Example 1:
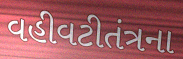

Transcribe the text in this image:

વહીવટીતંત્રના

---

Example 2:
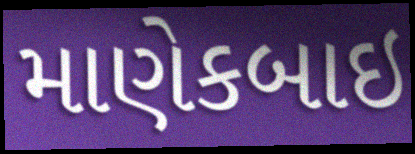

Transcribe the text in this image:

માણેકબાઇ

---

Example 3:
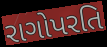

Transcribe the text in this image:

રાગોપરતિ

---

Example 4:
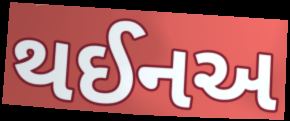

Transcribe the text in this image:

થઈનઅ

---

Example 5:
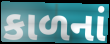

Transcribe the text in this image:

કાળનાં